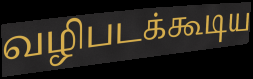
வழிபடக்கூடிய